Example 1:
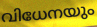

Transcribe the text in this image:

വിധേനയും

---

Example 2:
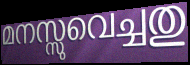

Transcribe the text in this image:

മനസ്സുവെച്ചതു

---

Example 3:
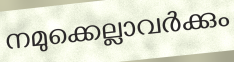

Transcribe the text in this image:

നമുക്കെല്ലാവർക്കും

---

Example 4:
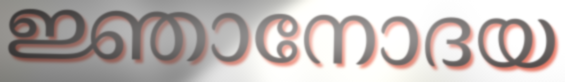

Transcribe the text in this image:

ജ്ഞാനോദയ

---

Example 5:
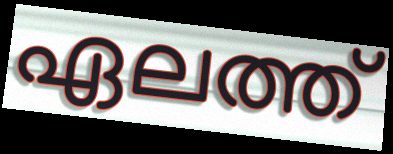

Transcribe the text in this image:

ഏലത്ത്